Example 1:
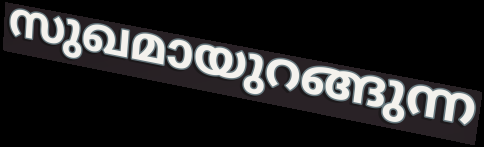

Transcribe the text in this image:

സുഖമായുറങ്ങുന്ന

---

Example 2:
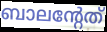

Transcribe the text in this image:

ബാലന്റേത്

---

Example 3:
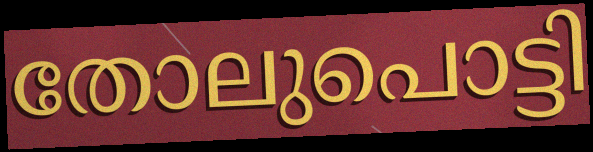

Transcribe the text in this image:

തോലുപൊട്ടി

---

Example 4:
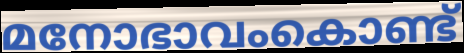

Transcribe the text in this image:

മനോഭാവംകൊണ്ട്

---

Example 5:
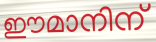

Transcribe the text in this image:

ഈമാനിന്